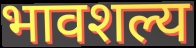
भावशल्य